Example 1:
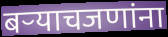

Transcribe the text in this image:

बऱ्याचजणांना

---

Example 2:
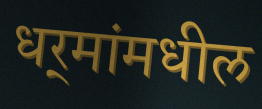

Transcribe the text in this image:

धर्मांमधील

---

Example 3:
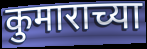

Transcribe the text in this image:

कुमाराच्या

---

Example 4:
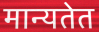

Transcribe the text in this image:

मान्यतेत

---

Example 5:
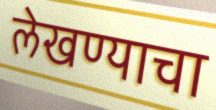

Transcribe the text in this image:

लेखण्याचा